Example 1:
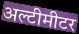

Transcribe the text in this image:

अल्टीमीटर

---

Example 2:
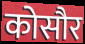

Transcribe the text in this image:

कोसौर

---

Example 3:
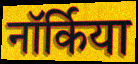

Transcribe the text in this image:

नॉर्किया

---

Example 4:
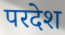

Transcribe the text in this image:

परदेश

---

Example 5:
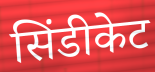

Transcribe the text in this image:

सिंडीकेट